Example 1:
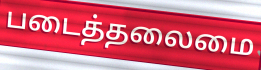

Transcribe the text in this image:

படைத்தலைமை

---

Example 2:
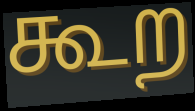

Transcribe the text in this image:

கூற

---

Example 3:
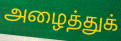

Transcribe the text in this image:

அழைத்துக்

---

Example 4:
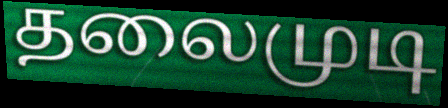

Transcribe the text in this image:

தலைமுடி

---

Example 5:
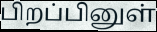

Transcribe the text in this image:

பிறப்பினுள்